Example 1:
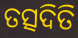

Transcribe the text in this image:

ତତ୍ସଦିତି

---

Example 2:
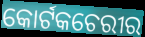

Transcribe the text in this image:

କୋର୍ଟକଚେରୀର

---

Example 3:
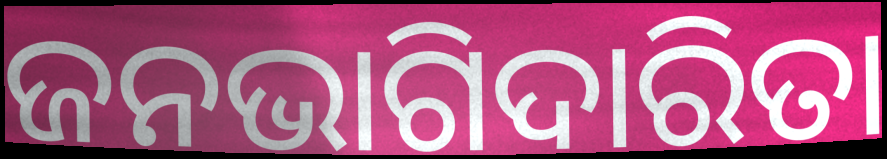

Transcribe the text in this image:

ଜନଭାଗିଦାରିତା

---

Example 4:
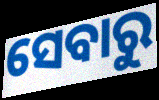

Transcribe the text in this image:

ସେବାରୁ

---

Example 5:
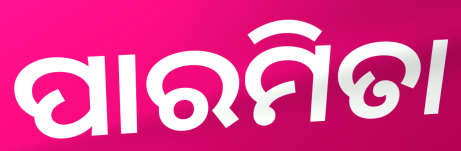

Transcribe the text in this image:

ପାରମିତା